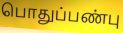
பொதுப்பண்பு